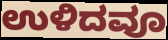
ಉಳಿದವೂ